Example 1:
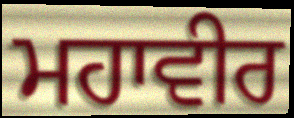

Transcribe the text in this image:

ਮਹਾਵੀਰ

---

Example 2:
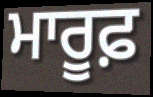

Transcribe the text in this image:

ਮਾਰੂਫ਼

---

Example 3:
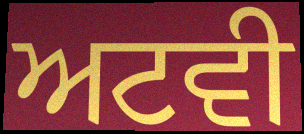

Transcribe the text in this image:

ਅਟਵੀ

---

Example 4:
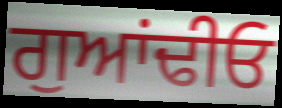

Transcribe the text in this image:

ਗੁਆਂਢੀਓ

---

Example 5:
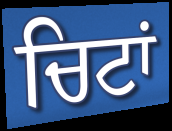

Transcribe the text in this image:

ਚਿਟਾਂ